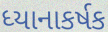
ધ્યાનાકર્ષક